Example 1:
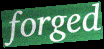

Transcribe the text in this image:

forged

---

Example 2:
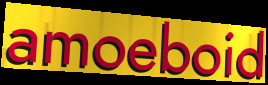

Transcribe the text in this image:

amoeboid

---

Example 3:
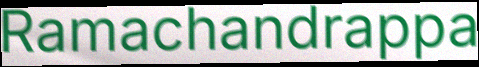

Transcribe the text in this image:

Ramachandrappa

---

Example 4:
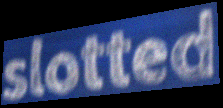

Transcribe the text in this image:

slotted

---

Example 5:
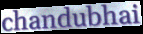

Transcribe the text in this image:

chandubhai